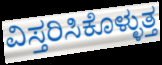
ವಿಸ್ತರಿಸಿಕೊಳ್ಳುತ್ತ